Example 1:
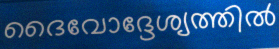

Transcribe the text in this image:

ദൈവോദ്ദേശ്യത്തിൽ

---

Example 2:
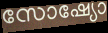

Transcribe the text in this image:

സോഷ്യോ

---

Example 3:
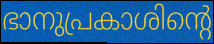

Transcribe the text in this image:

ഭാനുപ്രകാശിന്റെ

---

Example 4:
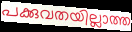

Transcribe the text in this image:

പക്കുവതയില്ലാത്ത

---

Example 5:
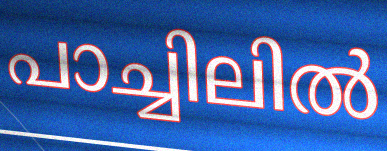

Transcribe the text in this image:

പാച്ചിലിൽ